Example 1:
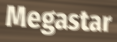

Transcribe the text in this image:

Megastar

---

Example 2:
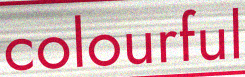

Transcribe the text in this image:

colourful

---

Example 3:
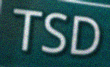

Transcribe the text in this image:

TSD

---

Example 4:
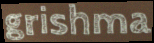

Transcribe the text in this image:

grishma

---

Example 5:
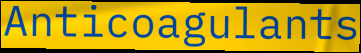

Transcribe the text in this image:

Anticoagulants